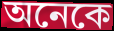
অনেকে